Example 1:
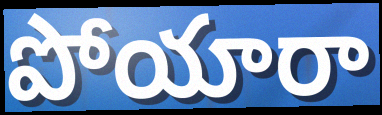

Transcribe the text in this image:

పోయారా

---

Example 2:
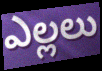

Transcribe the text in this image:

ఎల్లలు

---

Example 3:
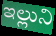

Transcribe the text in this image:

ఇల్లుని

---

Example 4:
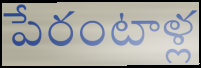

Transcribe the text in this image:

పేరంటాళ్ల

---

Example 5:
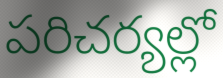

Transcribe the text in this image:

పరిచర్యల్లో